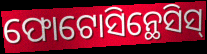
ଫୋଟୋସିନ୍ଥେସିସ୍